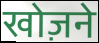
खोज़ने